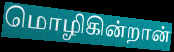
மொழிகின்றான்